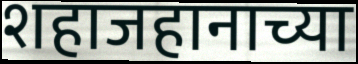
शहाजहानाच्या